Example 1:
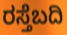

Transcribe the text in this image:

ರಸ್ತೆಬದಿ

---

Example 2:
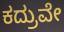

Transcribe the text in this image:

ಕದ್ರುವೇ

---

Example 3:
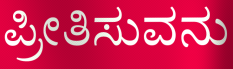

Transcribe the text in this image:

ಪ್ರೀತಿಸುವನು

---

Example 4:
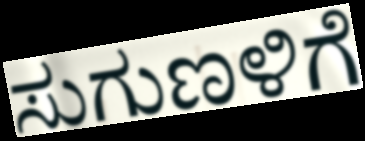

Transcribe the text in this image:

ಸುಗುಣಳಿಗೆ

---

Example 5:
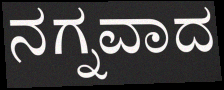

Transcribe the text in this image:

ನಗ್ನವಾದ